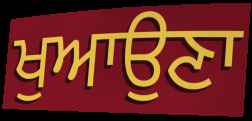
ਖੁਆਉਣਾ